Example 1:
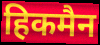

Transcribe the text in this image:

हिकमैन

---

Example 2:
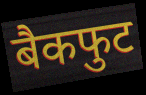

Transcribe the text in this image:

बैकफुट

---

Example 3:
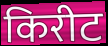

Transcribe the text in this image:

किरीट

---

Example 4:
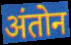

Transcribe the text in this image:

अंतोन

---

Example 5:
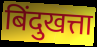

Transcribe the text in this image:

बिंदुखत्ता